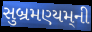
સુબ્રમણ્યમ્‌ની